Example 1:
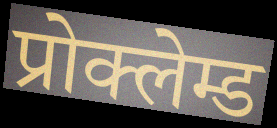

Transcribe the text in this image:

प्रोक्लेम्ड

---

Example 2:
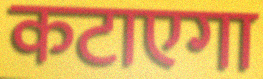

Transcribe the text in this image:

कटाएगा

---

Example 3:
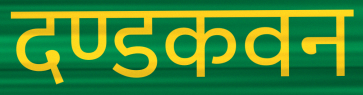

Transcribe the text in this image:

दण्डकवन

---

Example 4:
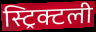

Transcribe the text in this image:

स्ट्रिक्टली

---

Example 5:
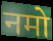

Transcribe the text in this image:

नमो